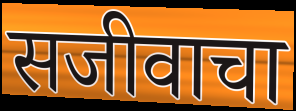
सजीवाचा